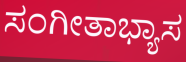
ಸಂಗೀತಾಭ್ಯಾಸ